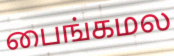
பைங்கமல